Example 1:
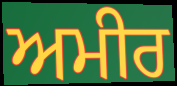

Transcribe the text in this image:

ਅਮੀਰ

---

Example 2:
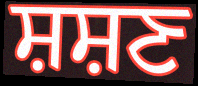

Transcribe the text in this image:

ਸ਼ਸ਼ਣ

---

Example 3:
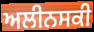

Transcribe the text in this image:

ਅਲੀਨਸਕੀ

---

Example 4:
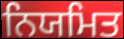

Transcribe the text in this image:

ਨਿਯਮਿਤ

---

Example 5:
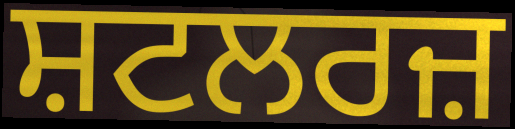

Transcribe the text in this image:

ਸ਼ਟਲਰਜ਼